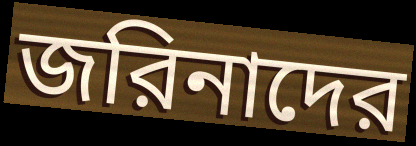
জরিনাদের